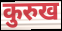
कुरुख